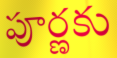
పూర్ణకు